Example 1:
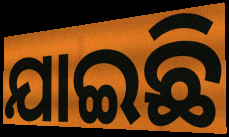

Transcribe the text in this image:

ଯାଇଛି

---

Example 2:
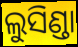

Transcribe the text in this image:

ଲୁସିଣ୍ଡା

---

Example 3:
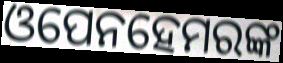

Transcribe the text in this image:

ଓପେନହେମରଙ୍କ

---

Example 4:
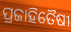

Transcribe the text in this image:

ପ୍ରଜାହିତୈଷୀ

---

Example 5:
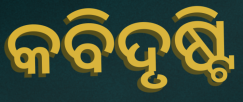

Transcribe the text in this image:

କବିଦୃଷ୍ଟି